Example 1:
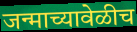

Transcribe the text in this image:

जन्माच्यावेळीच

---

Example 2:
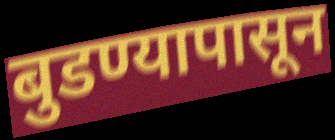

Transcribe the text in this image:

बुडण्यापासून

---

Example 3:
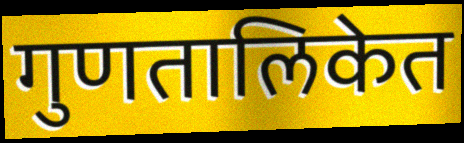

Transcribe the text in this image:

गुणतालिकेत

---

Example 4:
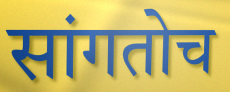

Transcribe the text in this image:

सांगतोच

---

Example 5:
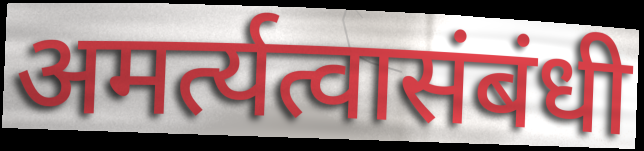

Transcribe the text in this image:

अमर्त्यत्वासंबंधी